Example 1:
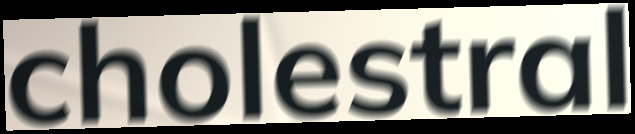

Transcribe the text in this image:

cholestral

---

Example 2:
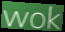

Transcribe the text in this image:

wok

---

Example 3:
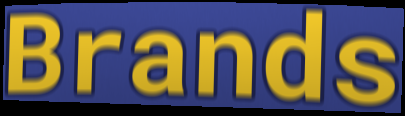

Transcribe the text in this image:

Brands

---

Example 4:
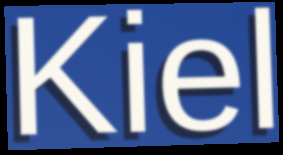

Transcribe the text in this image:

Kiel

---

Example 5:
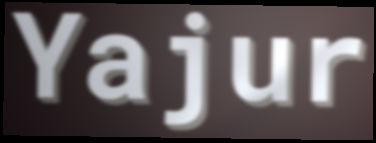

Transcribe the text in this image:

Yajur